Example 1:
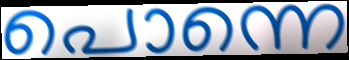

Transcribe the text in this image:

പൊന്നെ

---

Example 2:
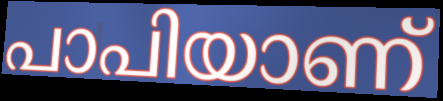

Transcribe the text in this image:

പാപിയാണ്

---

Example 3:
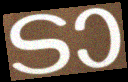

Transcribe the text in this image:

ടാ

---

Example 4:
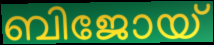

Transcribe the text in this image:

ബിജോയ്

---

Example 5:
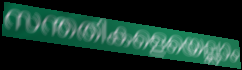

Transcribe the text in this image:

സന്തതികളെയെല്ലാം